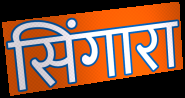
सिंगारा